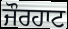
ਜੌਰਹਾਟ